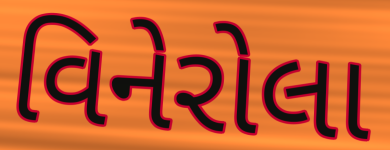
વિનેરોલા